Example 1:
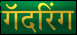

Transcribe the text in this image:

गॅदरिंग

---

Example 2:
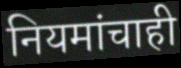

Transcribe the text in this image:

नियमांचाही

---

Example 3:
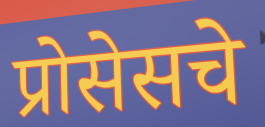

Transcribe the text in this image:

प्रोसेसचे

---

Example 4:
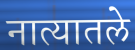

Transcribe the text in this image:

नात्यातले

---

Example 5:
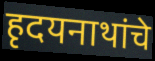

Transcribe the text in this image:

हृदयनाथांचे